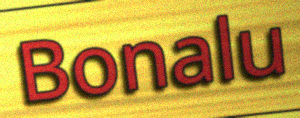
Bonalu